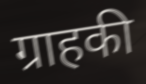
ग्राहकी